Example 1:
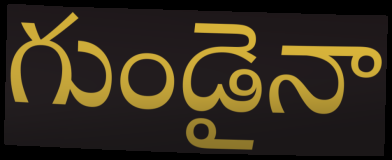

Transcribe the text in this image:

గుండైనా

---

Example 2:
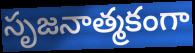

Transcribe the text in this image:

సృజనాత్మకంగా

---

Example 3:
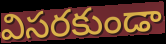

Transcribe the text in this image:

విసరకుండా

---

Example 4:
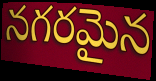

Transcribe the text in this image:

నగరమైన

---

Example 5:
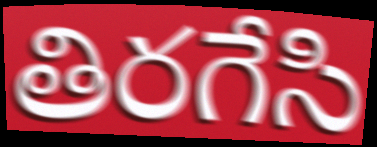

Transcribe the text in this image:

తిరగేసి